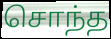
சொந்த